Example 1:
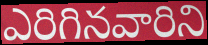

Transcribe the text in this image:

ఎరిగినవారిని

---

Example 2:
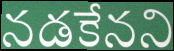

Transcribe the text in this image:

నడకేనని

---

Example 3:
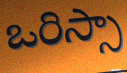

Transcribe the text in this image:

ఒరిస్సా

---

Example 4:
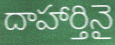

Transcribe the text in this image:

దాహార్తినై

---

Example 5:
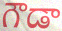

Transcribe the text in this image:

గౌడా